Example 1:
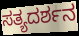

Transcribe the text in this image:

ಸತ್ಯದರ್ಶನ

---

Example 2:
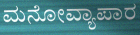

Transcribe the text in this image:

ಮನೋವ್ಯಾಪಾರ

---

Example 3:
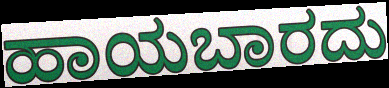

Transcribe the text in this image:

ಹಾಯಬಾರದು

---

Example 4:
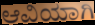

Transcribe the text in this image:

ಆವಿಯಾಗಿ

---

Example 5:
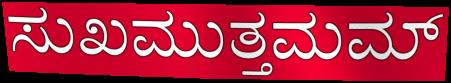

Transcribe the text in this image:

ಸುಖಮುತ್ತಮಮ್